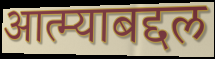
आत्म्याबद्दल